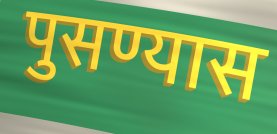
पुसण्यास